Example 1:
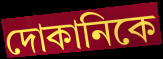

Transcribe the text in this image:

দোকানিকে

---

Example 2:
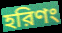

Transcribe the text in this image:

হরিণং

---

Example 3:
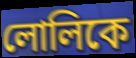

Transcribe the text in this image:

লোলিকে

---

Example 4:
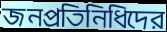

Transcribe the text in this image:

জনপ্রতিনিধিদের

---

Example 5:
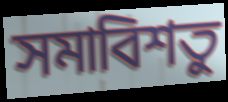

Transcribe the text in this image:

সমাবিশতু